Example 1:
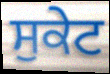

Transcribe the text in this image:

ਸੁਕੇਟ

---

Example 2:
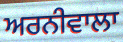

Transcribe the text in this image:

ਅਰਨੀਵਾਲਾ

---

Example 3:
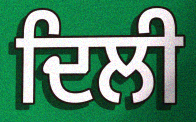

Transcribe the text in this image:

ਦਿਲੀ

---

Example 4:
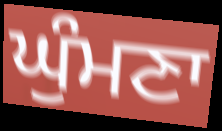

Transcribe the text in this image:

ਘੁੰਮਣਾ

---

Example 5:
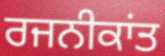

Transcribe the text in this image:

ਰਜਨੀਕਾਂਤ